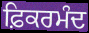
ਫ਼ਿਕਰਮੰਦ